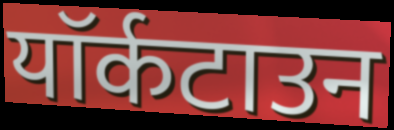
यॉर्कटाउन